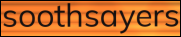
soothsayers